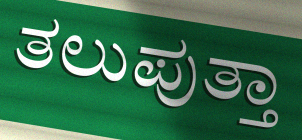
ತಲುಪುತ್ತಾ